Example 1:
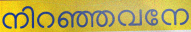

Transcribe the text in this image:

നിറഞ്ഞവനേ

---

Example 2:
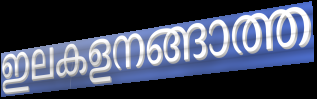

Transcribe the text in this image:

ഇലകളനങ്ങാത്ത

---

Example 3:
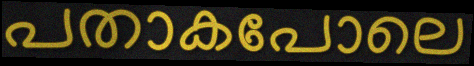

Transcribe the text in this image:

പതാകപോലെ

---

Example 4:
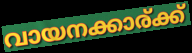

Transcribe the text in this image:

വായനക്കാര്ക്ക്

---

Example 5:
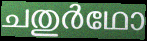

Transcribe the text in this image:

ചതുർഥോ